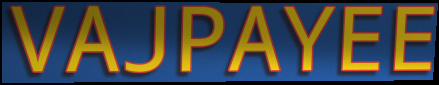
VAJPAYEE